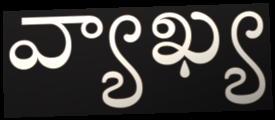
వ్యాఖ్య